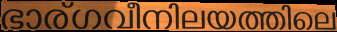
ഭാര്ഗവീനിലയത്തിലെ